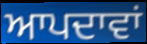
ਆਪਦਾਵਾਂ